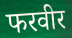
फरवीर